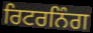
ਰਿਟਰਨਿੰਗ